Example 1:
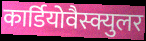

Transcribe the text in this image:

कार्डियोवैस्क्युलर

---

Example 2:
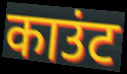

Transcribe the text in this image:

काउंट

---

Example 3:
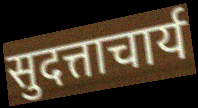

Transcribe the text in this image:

सुदत्ताचार्य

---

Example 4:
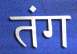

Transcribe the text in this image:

तंग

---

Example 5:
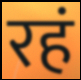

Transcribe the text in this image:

रहं